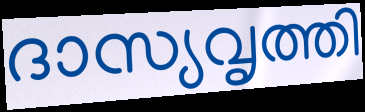
ദാസ്യവൃത്തി